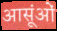
आसूंओं